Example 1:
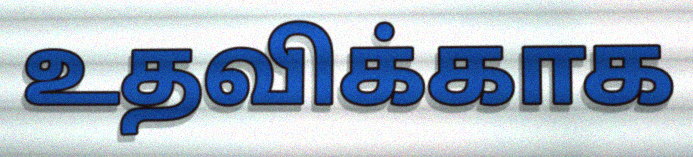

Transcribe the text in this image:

உதவிக்காக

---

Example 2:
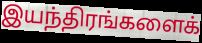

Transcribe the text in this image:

இயந்திரங்களைக்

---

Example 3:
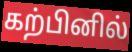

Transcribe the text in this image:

கற்பினில்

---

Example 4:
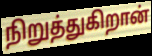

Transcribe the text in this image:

நிறுத்துகிறான்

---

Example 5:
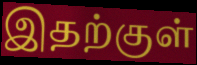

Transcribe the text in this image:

இதற்குள்